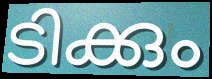
ടിക്കും